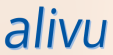
alivu